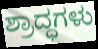
ಶ್ರಾದ್ಧಗಳು